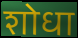
शोधा